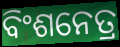
ବିଂଶନେତ୍ର